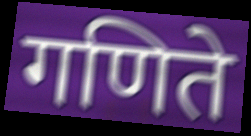
गणिते